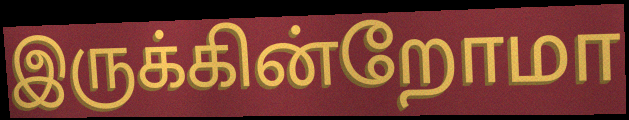
இருக்கின்றோமா